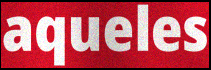
aqueles